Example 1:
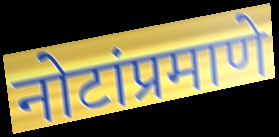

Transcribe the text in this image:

नोटांप्रमाणे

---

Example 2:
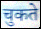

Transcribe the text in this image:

चुकते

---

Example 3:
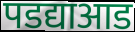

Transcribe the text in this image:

पडद्याआड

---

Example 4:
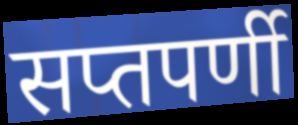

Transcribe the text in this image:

सप्तपर्णी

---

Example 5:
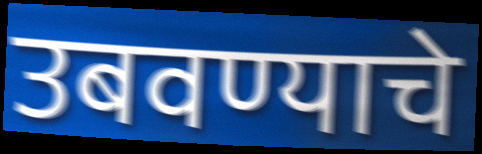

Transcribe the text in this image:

उबवण्याचे